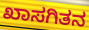
ಖಾಸಗಿತನ